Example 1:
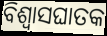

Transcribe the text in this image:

ବିଶ୍ୱାସଘାତକ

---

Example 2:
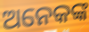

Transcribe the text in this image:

ଅନେକଙ୍କ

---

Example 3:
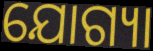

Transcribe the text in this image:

ଯୋଗ୍ୟା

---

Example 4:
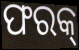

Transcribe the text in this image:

ଫରକ୍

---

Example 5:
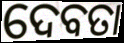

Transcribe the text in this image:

ଦେବତା